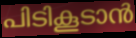
പിടികൂടാൻ